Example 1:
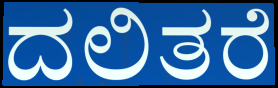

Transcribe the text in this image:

ದಲಿತರೆ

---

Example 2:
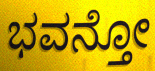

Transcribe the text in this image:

ಭವನ್ತೋ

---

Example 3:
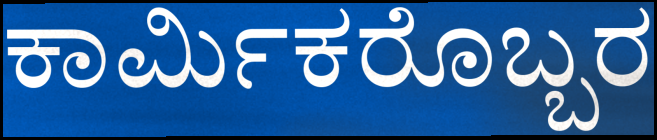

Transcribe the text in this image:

ಕಾರ್ಮಿಕರೊಬ್ಬರ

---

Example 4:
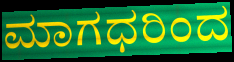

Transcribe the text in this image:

ಮಾಗಧರಿಂದ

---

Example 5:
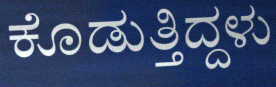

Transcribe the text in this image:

ಕೊಡುತ್ತಿದ್ದಳು